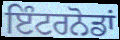
ਇੰਟਰਨੋਡਾਂ